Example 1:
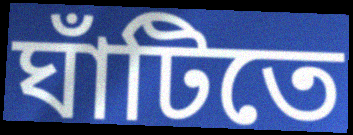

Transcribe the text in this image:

ঘাঁটিতে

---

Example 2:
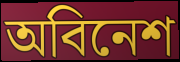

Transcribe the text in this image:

অবিনেশ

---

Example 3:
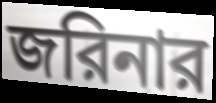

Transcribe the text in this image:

জরিনার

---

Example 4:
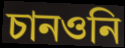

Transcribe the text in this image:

চানওনি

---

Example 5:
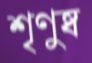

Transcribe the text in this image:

শৃণুষ্ব